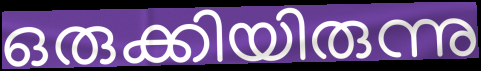
ഒരുക്കിയിരുന്നു